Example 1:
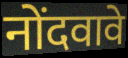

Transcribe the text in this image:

नोंदवावे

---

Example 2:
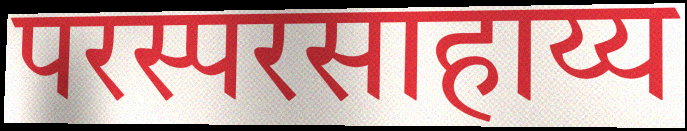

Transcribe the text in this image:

परस्परसाहाय्य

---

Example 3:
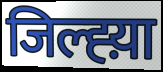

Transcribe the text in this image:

जिल्ह्य़ा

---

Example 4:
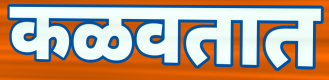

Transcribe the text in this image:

कळवतात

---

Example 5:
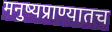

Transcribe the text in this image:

मनुष्यप्राण्यातच